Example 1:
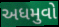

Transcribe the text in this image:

અધમુવો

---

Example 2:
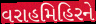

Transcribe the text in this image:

વરાહમિહિરને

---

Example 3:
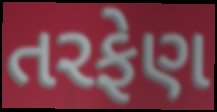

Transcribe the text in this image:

તરફેણ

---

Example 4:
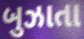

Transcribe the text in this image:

બુઝાતા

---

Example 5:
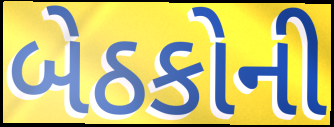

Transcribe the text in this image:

બેઠકોની